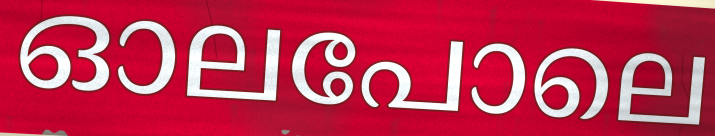
ഓലപോലെ